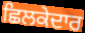
ਛਿਲਕੇਦਾਰ